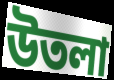
উতলা